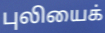
புலியைக்